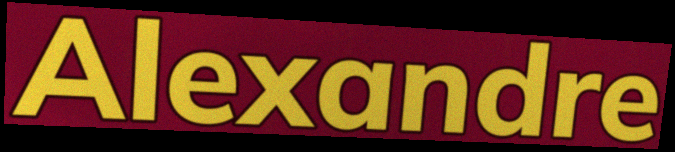
Alexandre